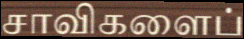
சாவிகளைப்